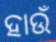
ହାଉଁ